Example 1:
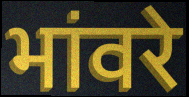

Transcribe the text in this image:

भांवरे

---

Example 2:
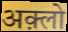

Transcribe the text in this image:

अक़्लो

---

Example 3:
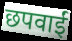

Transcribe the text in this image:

छपवाईं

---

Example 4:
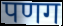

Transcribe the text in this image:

पणग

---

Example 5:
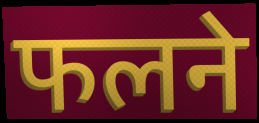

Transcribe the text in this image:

फलने